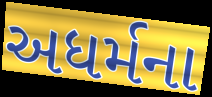
અધર્મના